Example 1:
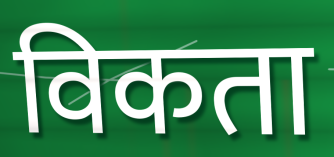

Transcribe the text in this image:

विकता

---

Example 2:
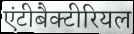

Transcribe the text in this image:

एंटीबैक्टीरियल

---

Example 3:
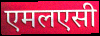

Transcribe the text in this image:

एमलएसी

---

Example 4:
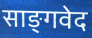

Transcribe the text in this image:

साङ्गवेद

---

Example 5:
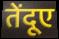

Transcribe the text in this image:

तेंदूए